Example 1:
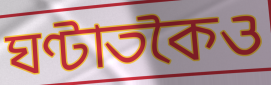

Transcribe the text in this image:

ঘণ্টাতকৈও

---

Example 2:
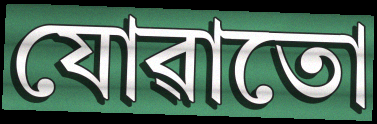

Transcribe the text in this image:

যোৱাতো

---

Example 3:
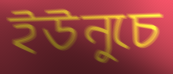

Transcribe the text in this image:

ইউনুচে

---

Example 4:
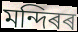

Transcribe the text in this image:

মন্দিৰৰ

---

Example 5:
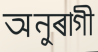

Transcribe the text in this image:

অনুৰাগী